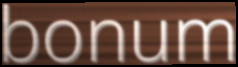
bonum